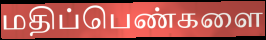
மதிப்பெண்களை